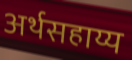
अर्थसहाय्य